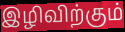
இழிவிற்கும்